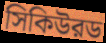
সিকিউরড